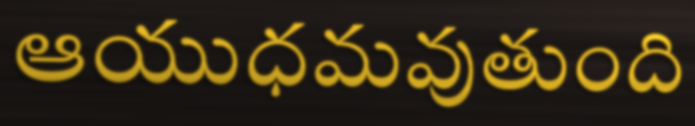
ఆయుధమవుతుంది